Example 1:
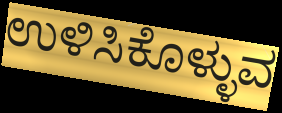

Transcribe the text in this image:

ಉಳಿಸಿಕೊಳ್ಳುವ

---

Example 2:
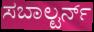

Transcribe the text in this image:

ಸಬಾಲ್ಟರ್ನ್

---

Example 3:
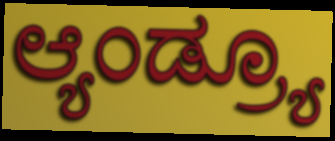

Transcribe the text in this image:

ಆ್ಯಂಡ್ರ್ಯೂ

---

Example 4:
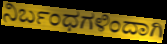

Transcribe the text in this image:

ನಿರ್ಬಂಧಗಳಿಂದಾಗಿ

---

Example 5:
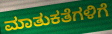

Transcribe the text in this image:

ಮಾತುಕತೆಗಳಿಗೆ